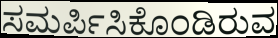
ಸಮರ್ಪಿಸಿಕೊಂಡಿರುವ